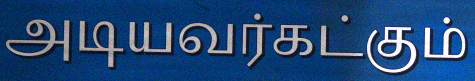
அடியவர்கட்கும்